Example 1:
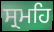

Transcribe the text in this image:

ਸ੍ਰਮਹਿ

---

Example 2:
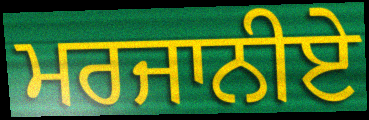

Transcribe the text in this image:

ਮਰਜਾਨੀਏ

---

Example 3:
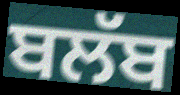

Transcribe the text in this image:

ਬਲੱਬ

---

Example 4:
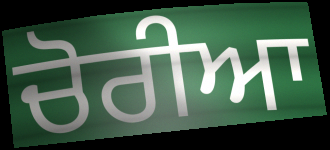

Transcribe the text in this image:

ਚੋਰੀਆ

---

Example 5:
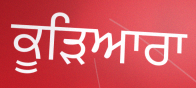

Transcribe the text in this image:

ਕੂੜਿਆਰਾ